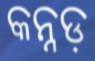
କନ୍ନଡ଼